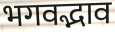
भगवद्भाव